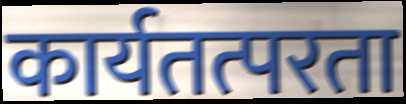
कार्यतत्परता